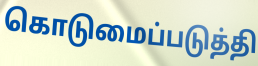
கொடுமைப்படுத்தி